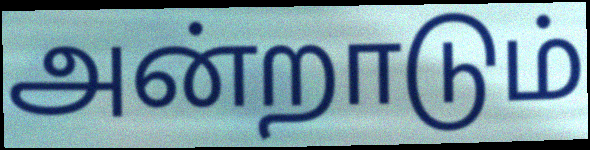
அன்றாடும்